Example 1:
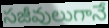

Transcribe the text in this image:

సజీవులుగానే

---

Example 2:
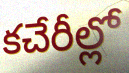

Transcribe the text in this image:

కచేరీల్లో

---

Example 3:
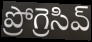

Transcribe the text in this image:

ప్రోగ్రెసివ్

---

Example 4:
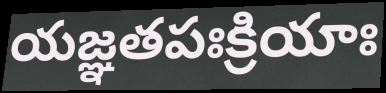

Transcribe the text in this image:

యజ్ఞతపఃక్రియాః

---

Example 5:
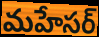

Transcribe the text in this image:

మహేసర్